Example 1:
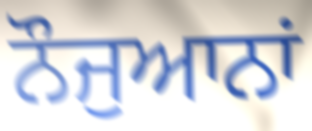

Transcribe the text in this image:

ਨੌਜੁਆਨਾਂ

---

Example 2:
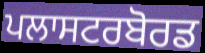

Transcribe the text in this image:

ਪਲਾਸਟਰਬੋਰਡ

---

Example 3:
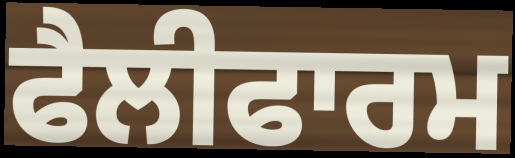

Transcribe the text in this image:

ਫੈਲੀਫਾਰਮ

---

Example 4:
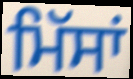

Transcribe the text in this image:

ਮਿੱਸਾਂ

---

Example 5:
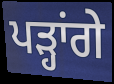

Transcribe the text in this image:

ਪੜ੍ਹਾਂਗੇ